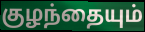
குழந்தையும்